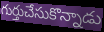
గుర్తుచేసుకొన్నాడు